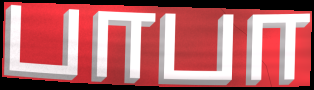
பாபா